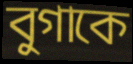
বুগাকে